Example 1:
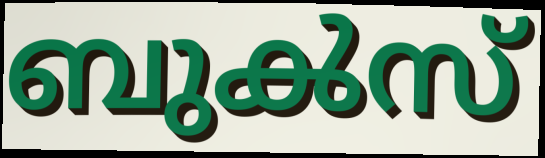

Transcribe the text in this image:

ബുൿസ്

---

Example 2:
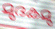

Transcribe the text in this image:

മുദകമു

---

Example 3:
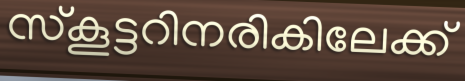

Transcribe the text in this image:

സ്കൂട്ടറിനരികിലേക്ക്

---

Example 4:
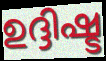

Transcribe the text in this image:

ഉദ്ദിഷ്ട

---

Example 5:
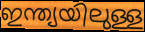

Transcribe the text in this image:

ഇന്ത്യയിലുള്ള